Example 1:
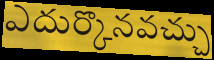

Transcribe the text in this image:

ఎదుర్కొనవచ్చు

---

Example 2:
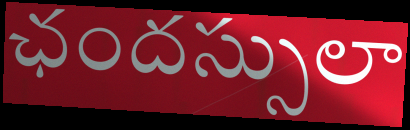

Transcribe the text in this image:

ఛందస్సులా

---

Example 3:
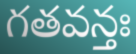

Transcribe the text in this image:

గతవన్తః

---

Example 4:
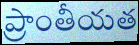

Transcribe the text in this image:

ప్రాంతీయత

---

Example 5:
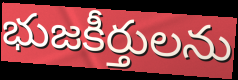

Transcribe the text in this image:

భుజకీర్తులను